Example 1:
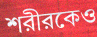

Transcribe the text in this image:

শরীরকেও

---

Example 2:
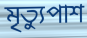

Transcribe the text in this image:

মৃত্যুপাশ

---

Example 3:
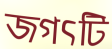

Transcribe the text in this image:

জগৎটি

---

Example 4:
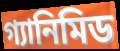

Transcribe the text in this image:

গ্যানিমিড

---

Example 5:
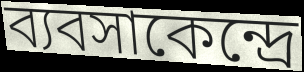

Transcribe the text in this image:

ব্যবসাকেন্দ্রে